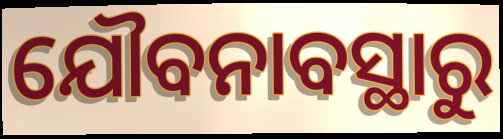
ଯୌବନାବସ୍ଥାରୁ